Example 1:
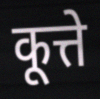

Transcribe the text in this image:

कूत्ते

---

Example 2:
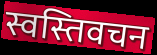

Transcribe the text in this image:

स्वस्तिवचन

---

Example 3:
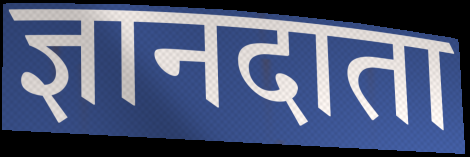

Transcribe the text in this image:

ज्ञानदाता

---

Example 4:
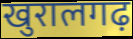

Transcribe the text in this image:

खुरालगढ़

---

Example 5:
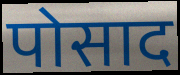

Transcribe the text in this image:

पोसाद